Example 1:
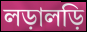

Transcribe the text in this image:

লড়ালড়ি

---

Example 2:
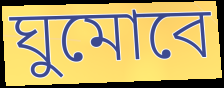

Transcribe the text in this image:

ঘুমোবে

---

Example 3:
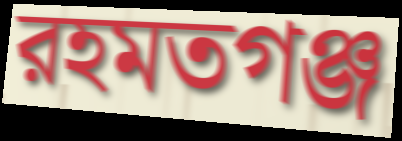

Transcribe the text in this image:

রহমতগঞ্জ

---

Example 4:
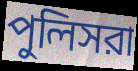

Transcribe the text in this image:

পুলিসরা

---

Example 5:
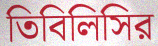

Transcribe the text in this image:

তিবিলিসির